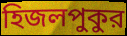
হিজলপুকুর